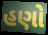
હણો